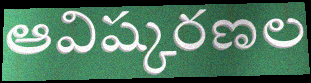
ఆవిష్కరణల